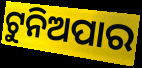
ଟୁନିଅପାର